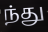
ந்து